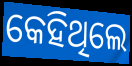
କେହିଥିଲେ